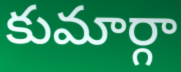
కుమార్గా